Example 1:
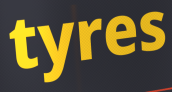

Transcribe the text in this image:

tyres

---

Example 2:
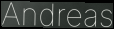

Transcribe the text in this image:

Andreas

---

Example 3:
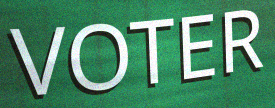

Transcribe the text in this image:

VOTER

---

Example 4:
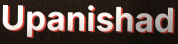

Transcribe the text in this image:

Upanishad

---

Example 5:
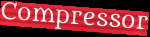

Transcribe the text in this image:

Compressor